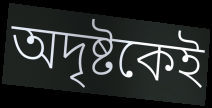
অদৃষ্টকেই